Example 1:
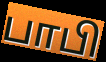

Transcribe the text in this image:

பாபி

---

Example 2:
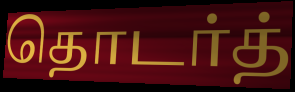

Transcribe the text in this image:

தொடர்த்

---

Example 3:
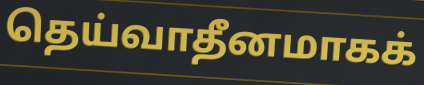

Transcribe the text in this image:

தெய்வாதீனமாகக்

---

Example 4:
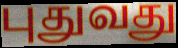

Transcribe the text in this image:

புதுவது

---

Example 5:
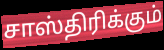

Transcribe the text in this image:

சாஸ்திரிக்கும்